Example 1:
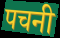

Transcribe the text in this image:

पचनी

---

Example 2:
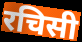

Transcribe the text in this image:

रचिसी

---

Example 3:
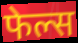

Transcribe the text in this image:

फेल्स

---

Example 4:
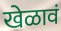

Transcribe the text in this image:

खेळावं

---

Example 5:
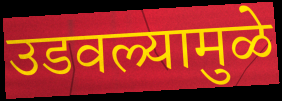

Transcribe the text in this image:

उडवल्यामुळे